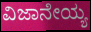
ವಿಜಾನೇಯ್ಯ